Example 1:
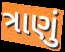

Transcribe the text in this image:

ત્રાણું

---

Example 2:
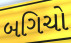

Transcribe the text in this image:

બગિચો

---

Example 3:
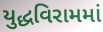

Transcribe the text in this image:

યુદ્ધવિરામમાં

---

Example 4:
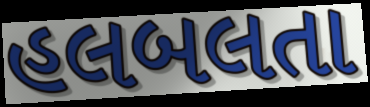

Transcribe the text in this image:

હલબલતા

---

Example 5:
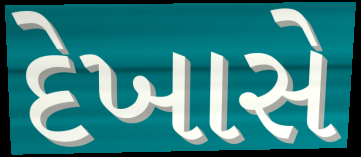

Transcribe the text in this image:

દેખાસે